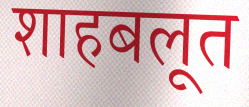
शाहबलूत